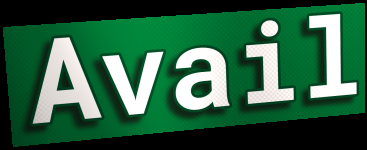
Avail